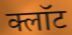
क्‍लॉट